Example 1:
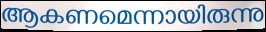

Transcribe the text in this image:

ആകണമെന്നായിരുന്നു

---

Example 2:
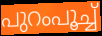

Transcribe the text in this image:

പുറംപൂച്ച്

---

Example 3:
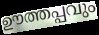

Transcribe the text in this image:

ഊത്തപ്പവും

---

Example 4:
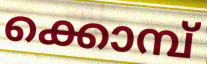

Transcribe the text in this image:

ക്കൊമ്പ്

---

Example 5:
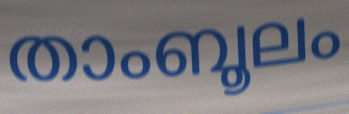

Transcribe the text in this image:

താംബൂലം